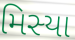
મિસ્યા